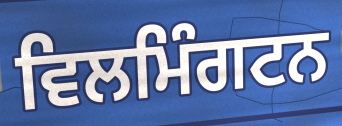
ਵਿਲਮਿੰਗਟਨ